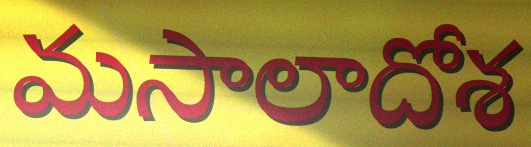
మసాలాదోశ